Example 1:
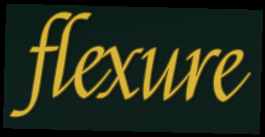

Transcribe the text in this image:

flexure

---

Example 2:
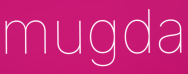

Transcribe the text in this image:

mugda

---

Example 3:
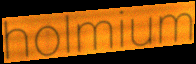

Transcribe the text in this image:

holmium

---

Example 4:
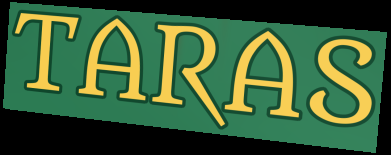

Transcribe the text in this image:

TARAS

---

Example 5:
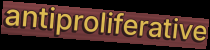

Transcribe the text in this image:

antiproliferative